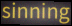
sinning